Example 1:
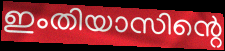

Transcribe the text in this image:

ഇംതിയാസിന്റെ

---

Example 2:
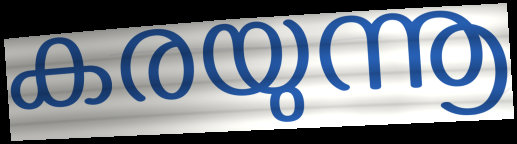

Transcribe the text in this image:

കരയുന്നൂ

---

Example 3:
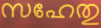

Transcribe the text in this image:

സഹേതു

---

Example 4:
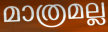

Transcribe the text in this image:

മാത്രമല്ല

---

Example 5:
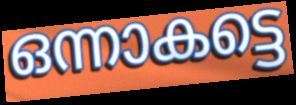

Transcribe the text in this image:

ഒന്നാകട്ടെ